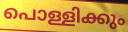
പൊള്ളിക്കും